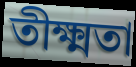
তীক্ষ্মতা